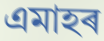
এমাহৰ